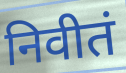
निवीतं